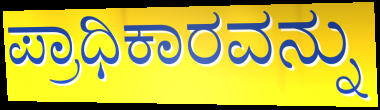
ಪ್ರಾಧಿಕಾರವನ್ನು